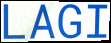
LAGI